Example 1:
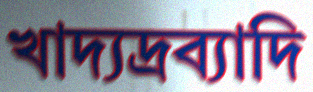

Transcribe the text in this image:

খাদ্যদ্রব্যাদি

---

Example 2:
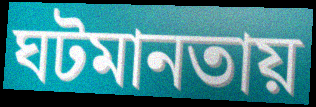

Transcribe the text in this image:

ঘটমানতায়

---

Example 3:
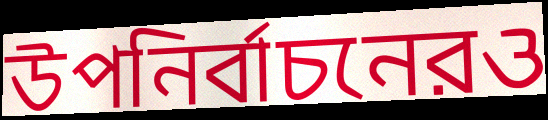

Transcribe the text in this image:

উপনির্বাচনেরও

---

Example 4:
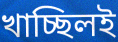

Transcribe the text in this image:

খাচ্ছিলই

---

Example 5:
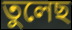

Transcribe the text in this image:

তুলেছ